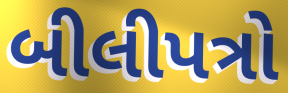
બીલીપત્રો